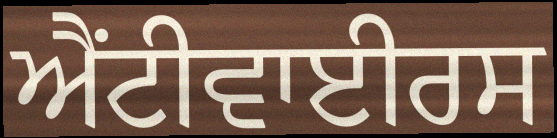
ਐਂਟੀਵਾਈਰਸ